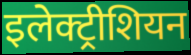
इलेक्‍ट्रीशियन